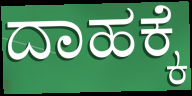
ದಾಹಕ್ಕೆ